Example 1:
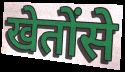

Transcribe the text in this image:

खेतोंसे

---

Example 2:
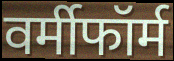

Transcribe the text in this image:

वर्मीफॉर्म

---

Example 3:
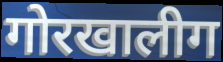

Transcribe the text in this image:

गोरखालीग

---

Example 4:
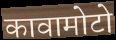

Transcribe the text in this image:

कावामोटो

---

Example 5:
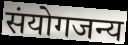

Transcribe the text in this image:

संयोगजन्य